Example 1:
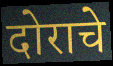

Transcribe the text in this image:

दोराचे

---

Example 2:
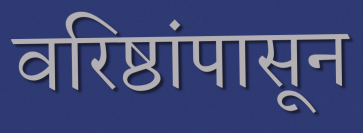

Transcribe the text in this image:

वरिष्ठांपासून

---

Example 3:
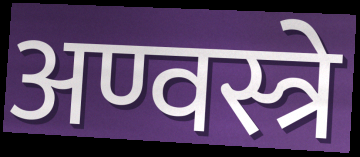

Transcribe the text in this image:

अण्वस्त्रे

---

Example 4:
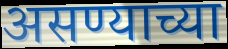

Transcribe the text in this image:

असण्याच्या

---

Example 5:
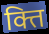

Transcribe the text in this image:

क्ति